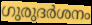
ഗുരുദർശനം